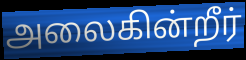
அலைகின்றீர்